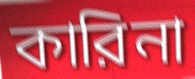
কারিনা